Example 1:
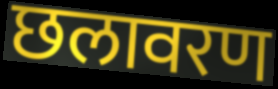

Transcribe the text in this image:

छलावरण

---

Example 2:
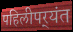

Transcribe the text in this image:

पहिलीपर्यंत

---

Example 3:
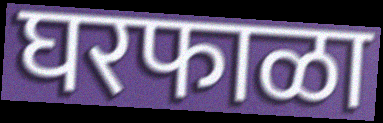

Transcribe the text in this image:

घरफाळा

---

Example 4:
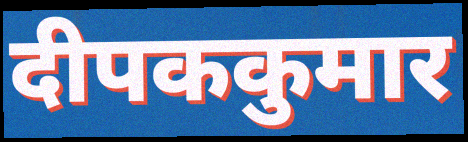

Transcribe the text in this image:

दीपककुमार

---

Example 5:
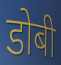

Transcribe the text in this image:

डोबी